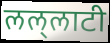
लल्लाटी